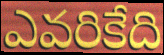
ఎవరికేది